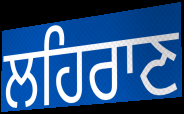
ਲਹਿਰਾਣ